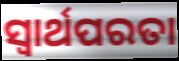
ସ୍ବାର୍ଥପରତା